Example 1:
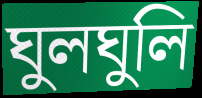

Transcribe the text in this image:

ঘুলঘুলি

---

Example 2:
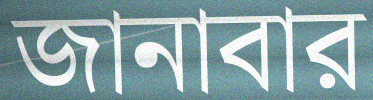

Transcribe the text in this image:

জানাবার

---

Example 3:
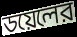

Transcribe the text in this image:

ডয়েলের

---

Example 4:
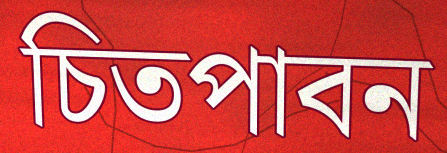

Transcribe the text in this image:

চিতপাবন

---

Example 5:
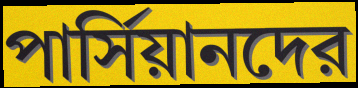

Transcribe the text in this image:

পার্সিয়ানদের